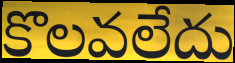
కొలవలేదు